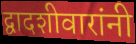
द्वादशीवारांनी